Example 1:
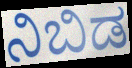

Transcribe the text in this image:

ನಿಬಿಡ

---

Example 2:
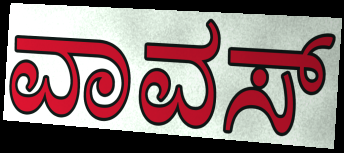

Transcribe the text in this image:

ವಾವಸ್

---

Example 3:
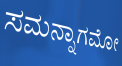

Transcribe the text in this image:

ಸಮನ್ನಾಗಮೋ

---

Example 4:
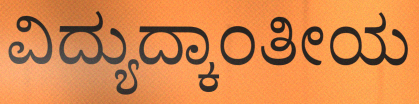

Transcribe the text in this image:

ವಿದ್ಯುದ್ಕಾಂತೀಯ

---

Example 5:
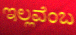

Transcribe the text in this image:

ಇಲ್ಲವೆಂಬ